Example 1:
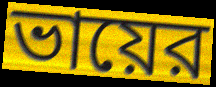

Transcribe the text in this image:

ভায়ের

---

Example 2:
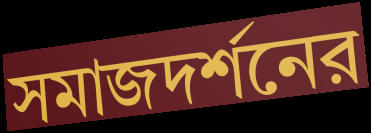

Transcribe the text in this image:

সমাজদর্শনের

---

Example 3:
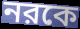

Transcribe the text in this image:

নরকে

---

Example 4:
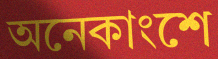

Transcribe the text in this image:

অনেকাংশে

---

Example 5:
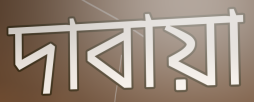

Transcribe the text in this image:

দাবায়া